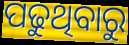
ପଢୁଥିବାରୁ